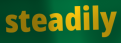
steadily